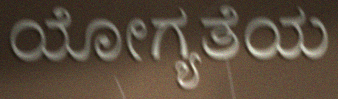
ಯೋಗ್ಯತೆಯ